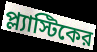
প্ল্যাস্টিকের